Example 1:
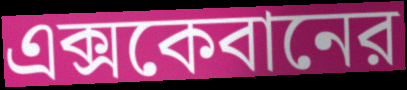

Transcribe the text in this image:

এক্সকেবানের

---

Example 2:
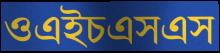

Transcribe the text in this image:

ওএইচএসএস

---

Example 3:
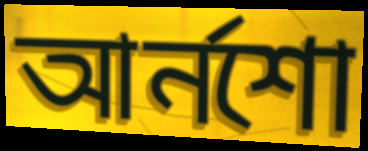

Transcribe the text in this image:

আর্নশো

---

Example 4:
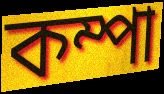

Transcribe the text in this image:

কম্পা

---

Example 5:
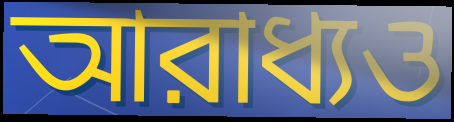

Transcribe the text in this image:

আরাধ্যও